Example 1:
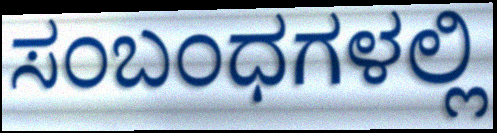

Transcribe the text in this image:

ಸಂಬಂಧಗಳಲ್ಲಿ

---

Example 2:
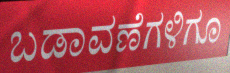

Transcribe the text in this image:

ಬಡಾವಣೆಗಳಿಗೂ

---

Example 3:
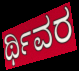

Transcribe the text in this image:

ರ್ಥಿವರ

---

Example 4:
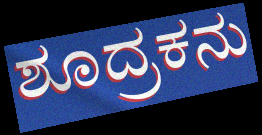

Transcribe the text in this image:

ಶೂದ್ರಕನು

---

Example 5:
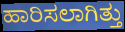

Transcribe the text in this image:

ಹಾರಿಸಲಾಗಿತ್ತು